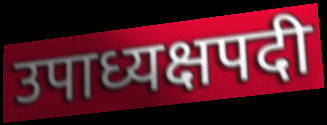
उपाध्यक्षपदी